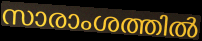
സാരാംശത്തിൽ